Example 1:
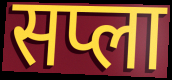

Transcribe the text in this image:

सप्ला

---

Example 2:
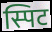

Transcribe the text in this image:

स्पिट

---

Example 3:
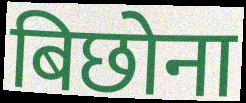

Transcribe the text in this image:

बिछोना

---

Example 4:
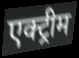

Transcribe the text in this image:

एक्ट्रीम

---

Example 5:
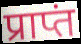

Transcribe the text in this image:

प्राप्तं